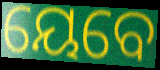
ୟେବେ